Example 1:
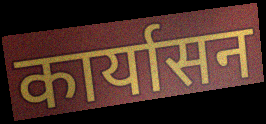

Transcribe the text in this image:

कार्यासन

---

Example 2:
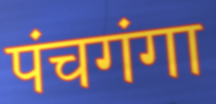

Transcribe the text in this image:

पंचगंगा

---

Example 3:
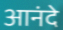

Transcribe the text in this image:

आनंदे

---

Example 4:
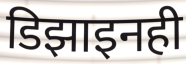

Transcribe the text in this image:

डिझाइनही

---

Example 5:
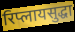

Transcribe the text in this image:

रिप्लायसुद्धा